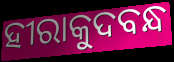
ହୀରାକୁଦବନ୍ଧ